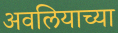
अवलियाच्या